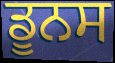
ਡੂਨਸ